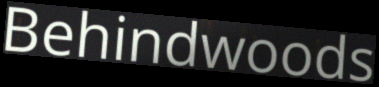
Behindwoods